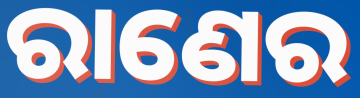
ରାଣେର